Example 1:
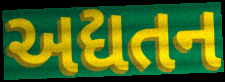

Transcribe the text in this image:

અદ્યતન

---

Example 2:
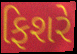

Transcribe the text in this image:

ફિશરે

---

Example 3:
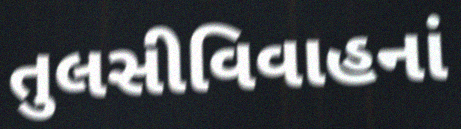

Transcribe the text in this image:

તુલસીવિવાહનાં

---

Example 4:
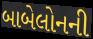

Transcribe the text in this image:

બાબેલોનની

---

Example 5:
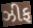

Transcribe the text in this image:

ઝીફ